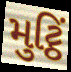
મુટ્ઠિં